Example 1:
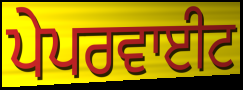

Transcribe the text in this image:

ਪੇਪਰਵਾਈਟ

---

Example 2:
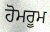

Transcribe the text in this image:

ਹੋਮਰੂਮ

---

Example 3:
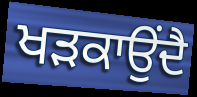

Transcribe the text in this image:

ਖੜਕਾਉਂਦੈ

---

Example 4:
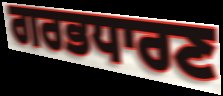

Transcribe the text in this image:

ਗਰਭਧਾਰਣ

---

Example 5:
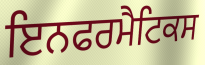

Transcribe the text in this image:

ਇਨਫਰਮੈਟਿਕਸ